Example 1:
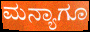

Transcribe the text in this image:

ಮನ್ಯಾಗೂ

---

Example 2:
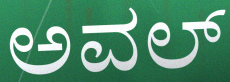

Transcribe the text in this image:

ಅವಲ್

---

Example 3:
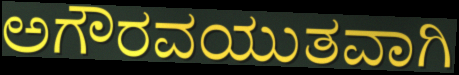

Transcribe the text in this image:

ಅಗೌರವಯುತವಾಗಿ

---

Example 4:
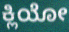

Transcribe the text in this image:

ಕ್ಲಿಯೋ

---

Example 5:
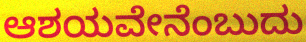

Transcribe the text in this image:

ಆಶಯವೇನೆಂಬುದು